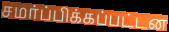
சமர்ப்பிக்கப்பட்டன